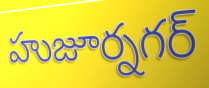
హుజూర్నగర్